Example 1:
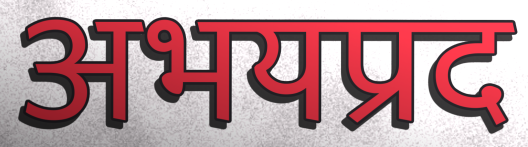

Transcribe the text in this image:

अभयप्रद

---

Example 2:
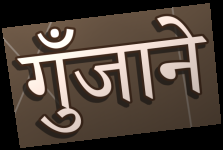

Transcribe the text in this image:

गुँजाने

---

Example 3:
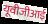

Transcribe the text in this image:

यूवीजीआई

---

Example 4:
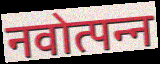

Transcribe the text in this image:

नवोत्पन्न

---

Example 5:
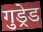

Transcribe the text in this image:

गुड्रेड